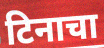
टिनाचा